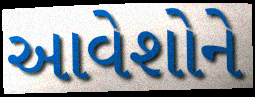
આવેશોને